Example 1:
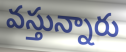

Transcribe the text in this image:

వస్తున్నారు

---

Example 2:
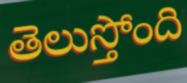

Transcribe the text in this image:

తెలుస్తోంది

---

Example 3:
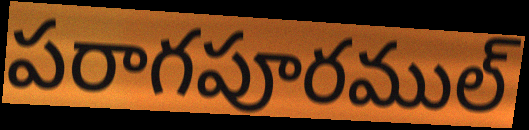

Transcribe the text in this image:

పరాగపూరముల్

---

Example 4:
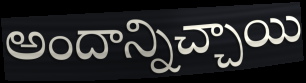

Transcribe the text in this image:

అందాన్నిచ్చాయి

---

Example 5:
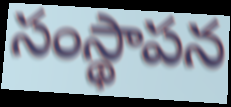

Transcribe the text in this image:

సంస్థాపన